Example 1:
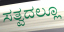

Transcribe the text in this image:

ಸತ್ವದಲ್ಲೂ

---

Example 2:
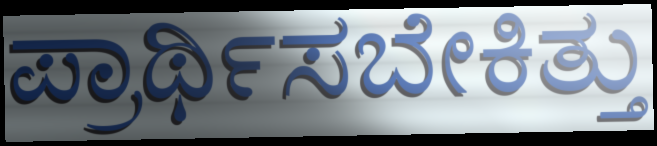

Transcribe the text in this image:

ಪ್ರಾರ್ಥಿಸಬೇಕಿತ್ತು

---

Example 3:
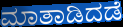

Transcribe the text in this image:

ಮಾತಾಡಿದಡೆ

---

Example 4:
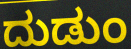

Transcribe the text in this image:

ದುಡುಂ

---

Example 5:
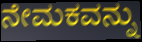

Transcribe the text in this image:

ನೇಮಕವನ್ನು